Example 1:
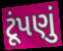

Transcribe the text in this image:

ટૂંપણું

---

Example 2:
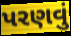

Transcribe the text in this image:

પરણવું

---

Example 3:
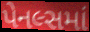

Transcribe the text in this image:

પેનલ્સમાં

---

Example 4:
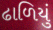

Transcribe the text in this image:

ઢાળિયું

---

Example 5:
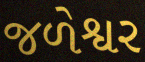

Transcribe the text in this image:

જળેશ્વર